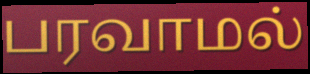
பரவாமல்